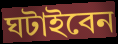
ঘটাইবেন